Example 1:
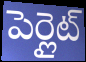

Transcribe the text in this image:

పెర్లైట్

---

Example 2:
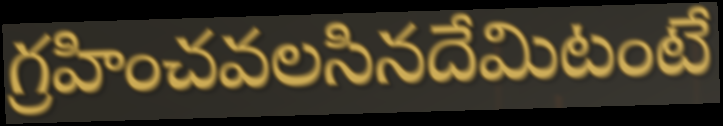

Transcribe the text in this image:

గ్రహించవలసినదేమిటంటే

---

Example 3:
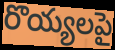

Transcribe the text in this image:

రొయ్యలపై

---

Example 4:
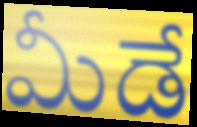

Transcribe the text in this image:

మీడే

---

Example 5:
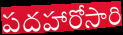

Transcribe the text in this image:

పదహారోసారి